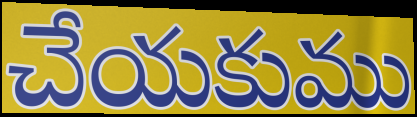
చేయకుము